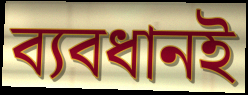
ব্যবধানই